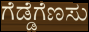
ಗೆಡ್ಡೆಗೆಣಸು